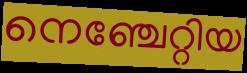
നെഞ്ചേറ്റിയ